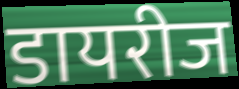
डायरीज